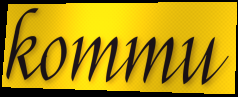
kommu